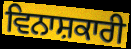
ਵਿਨਾਸ਼ਕਾਰੀ